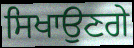
ਸਿਖਾਉਣਗੇ